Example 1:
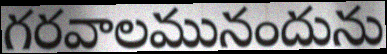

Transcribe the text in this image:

గరవాలమునందును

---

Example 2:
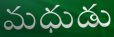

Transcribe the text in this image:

మధుడు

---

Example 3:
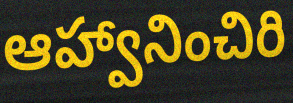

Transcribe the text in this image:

ఆహ్వానించిరి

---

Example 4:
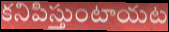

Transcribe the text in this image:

కనిపిస్తుంటాయట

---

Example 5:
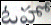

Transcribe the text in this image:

ఓహో